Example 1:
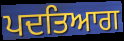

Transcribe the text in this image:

ਪਦਤਿਆਗ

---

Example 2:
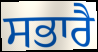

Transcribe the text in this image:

ਸਭਾਰੈ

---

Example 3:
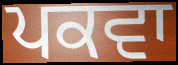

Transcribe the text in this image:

ਪਕਵਾ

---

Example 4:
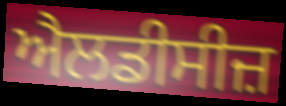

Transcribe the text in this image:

ਐਲਡੀਸੀਜ਼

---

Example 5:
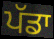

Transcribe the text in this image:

ਪੱਡਾ